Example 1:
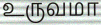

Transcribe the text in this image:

உருவமா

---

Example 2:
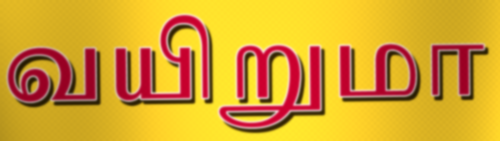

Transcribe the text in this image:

வயிறுமா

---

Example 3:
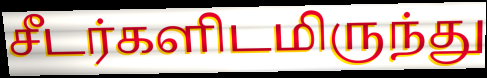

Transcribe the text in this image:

சீடர்களிடமிருந்து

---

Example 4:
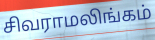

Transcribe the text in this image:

சிவராமலிங்கம்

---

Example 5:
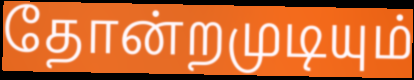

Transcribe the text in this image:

தோன்றமுடியும்